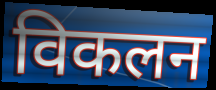
विकलन